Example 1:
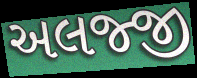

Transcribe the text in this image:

અલજ્જી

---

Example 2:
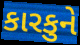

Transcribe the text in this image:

કારકુને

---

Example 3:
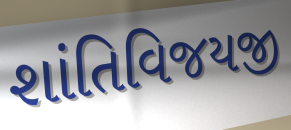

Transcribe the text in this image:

શાંતિવિજયજી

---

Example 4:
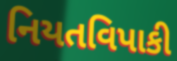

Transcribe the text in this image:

નિયતવિપાકી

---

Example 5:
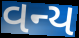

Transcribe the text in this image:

વન્ય